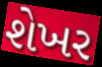
શેખર